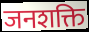
जनशक्ति